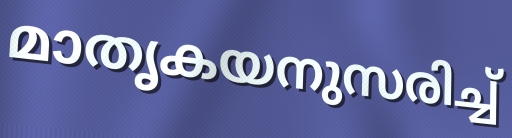
മാതൃകയനുസരിച്ച്